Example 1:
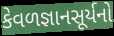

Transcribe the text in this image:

કેવળજ્ઞાનસૂર્યનો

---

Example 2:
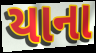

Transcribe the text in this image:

યાના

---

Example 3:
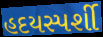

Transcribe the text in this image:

હદયસ્પર્શી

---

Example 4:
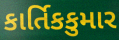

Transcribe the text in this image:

કાર્તિકકુમાર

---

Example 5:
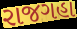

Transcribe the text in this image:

રાજગહા